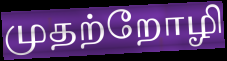
முதற்றோழி